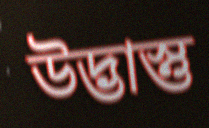
উদ্ভাস্তু